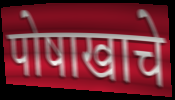
पोषाखाचे